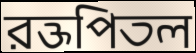
রক্তপিতল